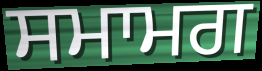
ਸਮਾਮਗ